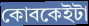
কোবকেইটা